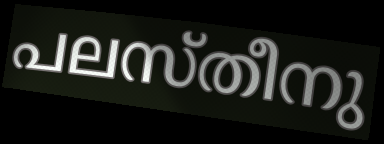
പലസ്തീനു